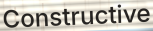
Constructive